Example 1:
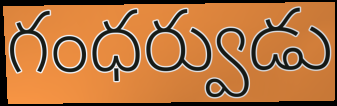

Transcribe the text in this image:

గంధర్వుడు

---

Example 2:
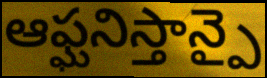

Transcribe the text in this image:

ఆఫ్ఘనిస్తాన్పై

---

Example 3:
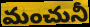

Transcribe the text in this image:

మంచునీ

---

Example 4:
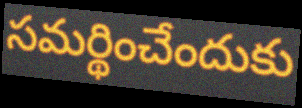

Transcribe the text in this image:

సమర్థించేందుకు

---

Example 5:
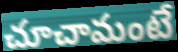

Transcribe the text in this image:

చూచామంటే